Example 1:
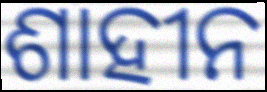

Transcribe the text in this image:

ଶାହୀନ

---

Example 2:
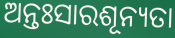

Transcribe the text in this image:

ଅନ୍ତଃସାରଶୂନ୍ୟତା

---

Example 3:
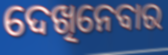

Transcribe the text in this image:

ଦେଖିନେବାର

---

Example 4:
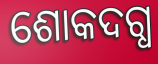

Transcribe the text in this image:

ଶୋକଦଗ୍ଧ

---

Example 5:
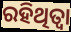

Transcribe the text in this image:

ରହିଥିତ୍ବା